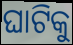
ଘାଟିକୁ